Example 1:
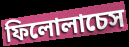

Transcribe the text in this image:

ফিলোলাচেস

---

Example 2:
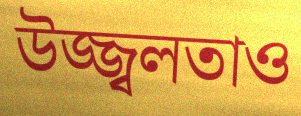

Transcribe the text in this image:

উজ্জ্বলতাও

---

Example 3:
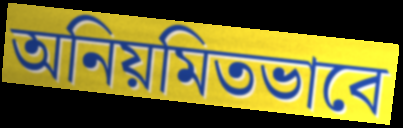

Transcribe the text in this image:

অনিয়মিতভাবে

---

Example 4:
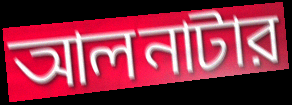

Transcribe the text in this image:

আলনাটার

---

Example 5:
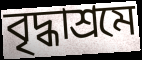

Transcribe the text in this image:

বৃদ্ধাশ্রমে